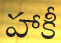
హాకీ